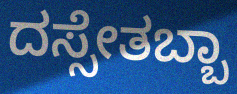
ದಸ್ಸೇತಬ್ಬಾ